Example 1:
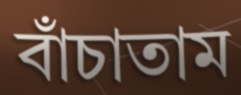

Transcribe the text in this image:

বাঁচাতাম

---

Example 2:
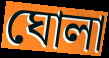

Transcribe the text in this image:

ঘোলা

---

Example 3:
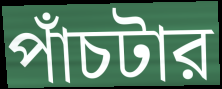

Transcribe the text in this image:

পাঁচটার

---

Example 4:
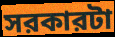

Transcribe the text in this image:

সরকারটা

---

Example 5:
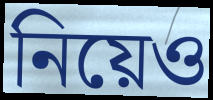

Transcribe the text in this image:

নিয়েও